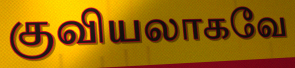
குவியலாகவே